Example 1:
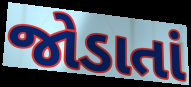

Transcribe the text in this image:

જોડાતાં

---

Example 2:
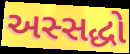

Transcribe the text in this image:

અસ્સદ્ધો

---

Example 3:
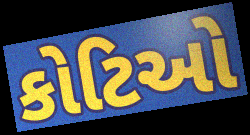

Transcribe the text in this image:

કોટિઓ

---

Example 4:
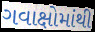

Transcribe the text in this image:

ગવાક્ષોમાંથી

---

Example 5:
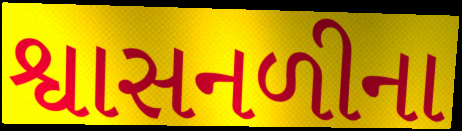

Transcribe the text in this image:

શ્વાસનળીના